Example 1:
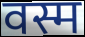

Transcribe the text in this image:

वस्म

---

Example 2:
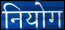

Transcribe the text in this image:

नियोग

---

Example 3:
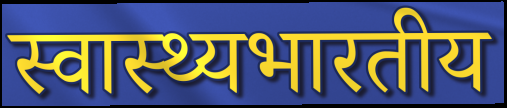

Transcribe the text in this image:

स्वास्थ्यभारतीय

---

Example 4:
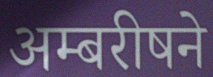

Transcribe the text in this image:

अम्बरीषने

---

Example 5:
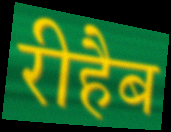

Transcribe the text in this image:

रीहैब